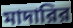
মাদারির